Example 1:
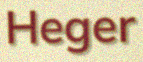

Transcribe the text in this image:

Heger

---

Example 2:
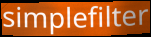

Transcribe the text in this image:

simplefilter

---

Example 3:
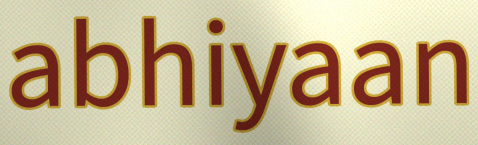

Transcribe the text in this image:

abhiyaan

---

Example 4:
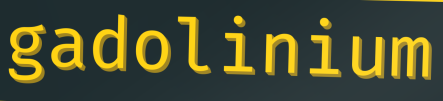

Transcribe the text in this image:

gadolinium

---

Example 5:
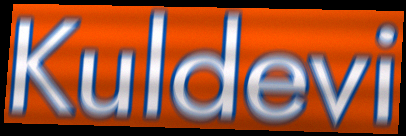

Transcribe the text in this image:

Kuldevi